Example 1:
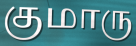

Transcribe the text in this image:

குமாரு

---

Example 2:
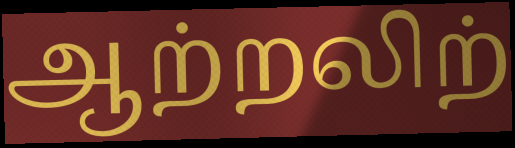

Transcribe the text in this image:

ஆற்றலிற்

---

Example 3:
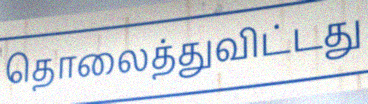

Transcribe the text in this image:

தொலைத்துவிட்டது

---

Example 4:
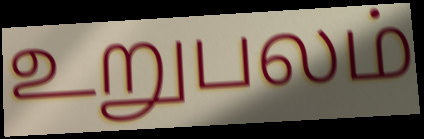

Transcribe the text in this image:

உறுபலம்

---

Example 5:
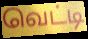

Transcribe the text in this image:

வெட்டி